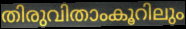
തിരുവിതാംകൂറിലും